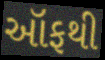
ઑફથી